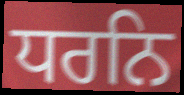
ਧਰਨਿ